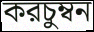
করচুম্বন